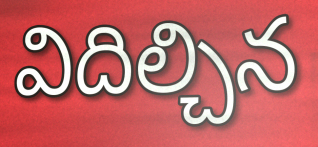
విదిల్చిన